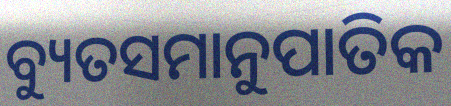
ବ୍ୟୁତସମାନୁପାତିକ